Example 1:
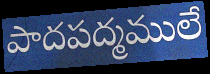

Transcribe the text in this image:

పాదపద్మములే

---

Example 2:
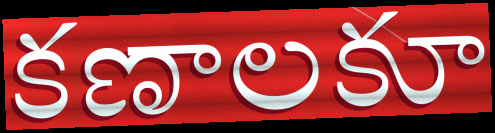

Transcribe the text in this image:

కణాలకూ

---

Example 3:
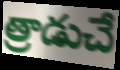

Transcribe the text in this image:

త్రాడుచే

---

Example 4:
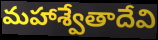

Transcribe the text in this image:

మహాశ్వేతాదేవి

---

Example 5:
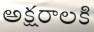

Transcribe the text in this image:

అక్షరాలకి